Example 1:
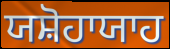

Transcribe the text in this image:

ਯਸ਼ੋਹਾਯਾਹ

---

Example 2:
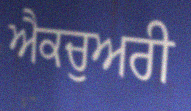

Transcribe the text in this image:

ਐਕਚੁਅਰੀ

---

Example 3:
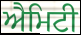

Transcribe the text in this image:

ਐਮਿਟੀ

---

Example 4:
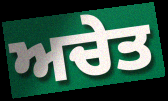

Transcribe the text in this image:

ਅਚੇਤ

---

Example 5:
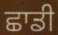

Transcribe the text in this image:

ਛਾਡੀ